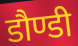
डौण्डी